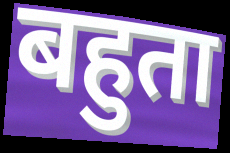
बहुता